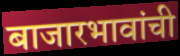
बाजारभावांची